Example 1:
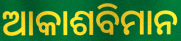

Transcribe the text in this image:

ଆକାଶବିମାନ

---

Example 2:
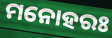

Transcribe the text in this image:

ମନୋହରଃ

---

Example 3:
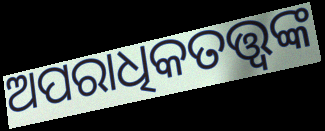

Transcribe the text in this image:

ଅପରାଧିକତତ୍ତ୍ୱଙ୍କ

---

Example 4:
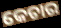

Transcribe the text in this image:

କେଚାର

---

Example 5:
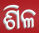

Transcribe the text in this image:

ଶିଳ